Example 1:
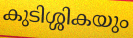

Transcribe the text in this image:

കുടിശ്ശികയും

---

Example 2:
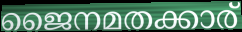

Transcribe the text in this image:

ജൈനമതക്കാര്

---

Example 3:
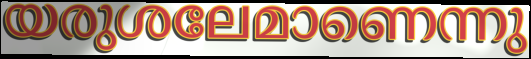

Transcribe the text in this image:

യരുശലേമാണെന്നു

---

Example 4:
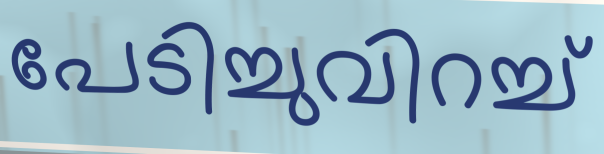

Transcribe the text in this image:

പേടിച്ചുവിറച്ച്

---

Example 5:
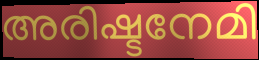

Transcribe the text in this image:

അരിഷ്ടനേമി